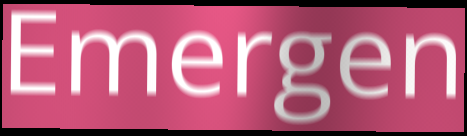
Emergen